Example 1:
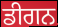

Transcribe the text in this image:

ਡੀਗਨ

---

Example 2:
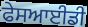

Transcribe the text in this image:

ਫੇਸਆਈਡੀ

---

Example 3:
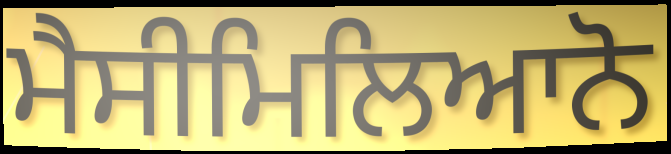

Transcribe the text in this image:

ਮੈਸੀਮਿਲਿਆਨੋ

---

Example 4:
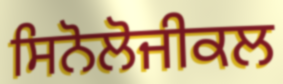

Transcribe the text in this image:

ਸਿਨੋਲੋਜੀਕਲ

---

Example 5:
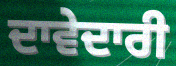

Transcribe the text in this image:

ਦਾਵੇਦਾਰੀ